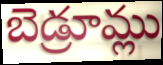
బెడ్రూమ్లు